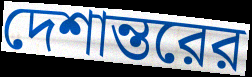
দেশান্তরের